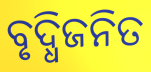
ବୃଦ୍ଧିଜନିତ